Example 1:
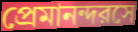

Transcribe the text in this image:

প্রেমানন্দরসে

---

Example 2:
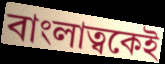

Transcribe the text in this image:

বাংলাত্বকেই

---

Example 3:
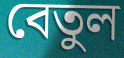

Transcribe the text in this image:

বেতুল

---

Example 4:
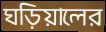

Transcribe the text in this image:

ঘড়িয়ালের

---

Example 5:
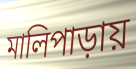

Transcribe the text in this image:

মালিপাড়ায়